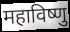
महाविष्णु